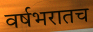
वर्षभरातच